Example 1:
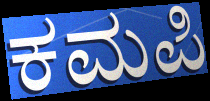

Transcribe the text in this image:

ಕಮಪಿ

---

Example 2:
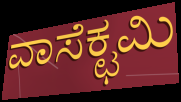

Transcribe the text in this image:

ವಾಸೆಕ್ಟಮಿ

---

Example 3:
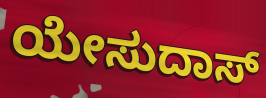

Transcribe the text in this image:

ಯೇಸುದಾಸ್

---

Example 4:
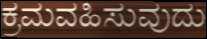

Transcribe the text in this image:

ಕ್ರಮವಹಿಸುವುದು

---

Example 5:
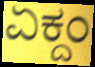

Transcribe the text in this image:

ಏಕ್ದಂ